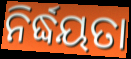
ନିର୍ଦ୍ଧୟତା